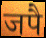
जपै